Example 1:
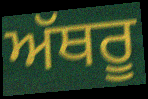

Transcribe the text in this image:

ਅੱਥਰੂ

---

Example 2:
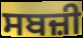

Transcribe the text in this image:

ਸਬਜ਼ੀ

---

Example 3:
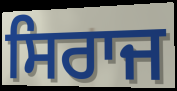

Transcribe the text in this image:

ਸਿਰਾਜ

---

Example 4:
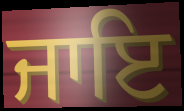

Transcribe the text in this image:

ਜਾਇ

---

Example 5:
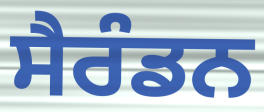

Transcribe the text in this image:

ਸੈਰੰਡਨ